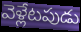
వెళ్లేటపుడు